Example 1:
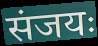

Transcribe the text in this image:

संजयः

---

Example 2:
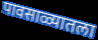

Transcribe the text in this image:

पावसाळ्यातला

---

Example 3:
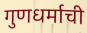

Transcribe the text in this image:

गुणधर्माची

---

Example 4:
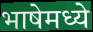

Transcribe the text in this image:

भाषेमध्ये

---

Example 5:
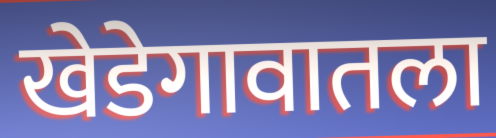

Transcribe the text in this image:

खेडेगावातला